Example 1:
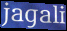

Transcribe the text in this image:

jagali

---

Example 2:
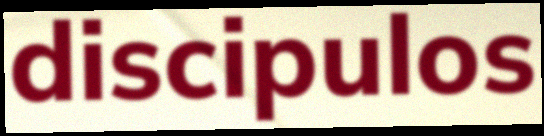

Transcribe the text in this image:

discipulos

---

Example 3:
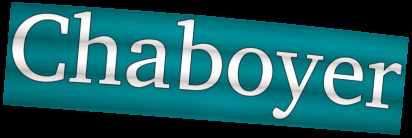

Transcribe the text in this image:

Chaboyer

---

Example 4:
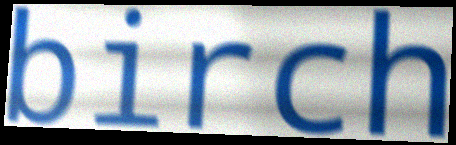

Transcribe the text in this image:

birch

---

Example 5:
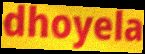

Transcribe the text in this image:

dhoyela